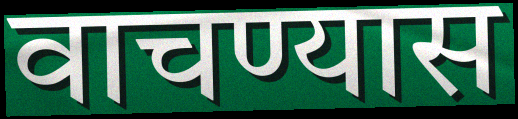
वाचण्यास